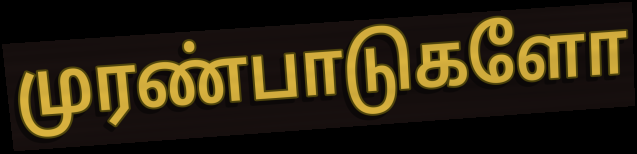
முரண்பாடுகளோ